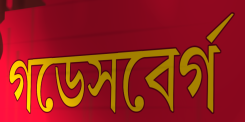
গডেসবের্গ